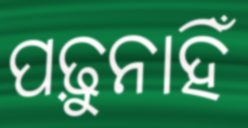
ପଢ଼ୁନାହିଁ